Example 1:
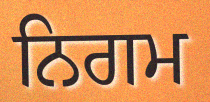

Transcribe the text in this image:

ਨਿਗਮ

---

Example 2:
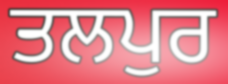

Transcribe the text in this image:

ਤਲਪੁਰ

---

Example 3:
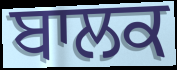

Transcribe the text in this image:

ਬਾਲਕ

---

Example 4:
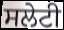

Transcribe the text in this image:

ਸਲੇਟੀ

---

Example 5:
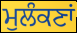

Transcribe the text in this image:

ਮੁਲੰਕਣਾਂ